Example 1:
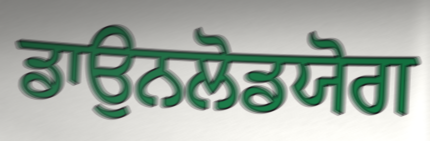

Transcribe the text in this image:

ਡਾਉਨਲੋਡਯੋਗ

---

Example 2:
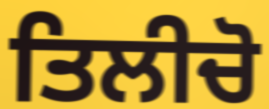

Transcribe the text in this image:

ਤਿਲੀਚੋ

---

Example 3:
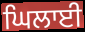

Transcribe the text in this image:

ਘਿਲਾਈ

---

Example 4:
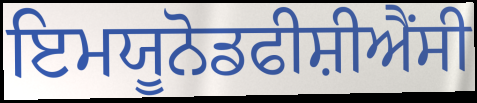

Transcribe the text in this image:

ਇਮਯੂਨੋਡਫੀਸ਼ੀਐਂਸੀ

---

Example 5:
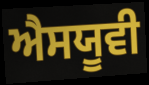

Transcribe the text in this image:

ਐਸਯੂਵੀ